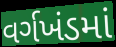
વર્ગખંડમાં